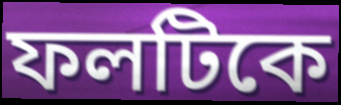
ফলটিকে